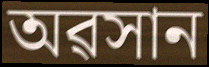
অৱসান